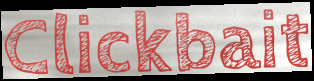
Clickbait